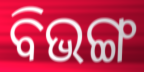
ବିଭଙ୍ଗ